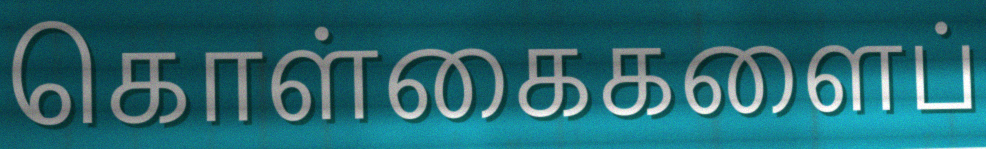
கொள்கைகளைப்